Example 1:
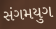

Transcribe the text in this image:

સંગમયુગ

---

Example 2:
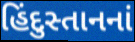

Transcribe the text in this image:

હિંદુસ્તાનનાં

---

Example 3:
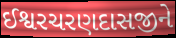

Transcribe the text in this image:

ઈશ્વરચરણદાસજીને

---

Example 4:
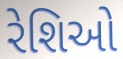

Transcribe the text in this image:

રેશિઓ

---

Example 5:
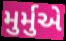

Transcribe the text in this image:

મુર્મુએ